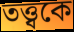
তত্ত্বকে